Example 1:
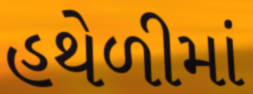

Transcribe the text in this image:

હથેળીમાં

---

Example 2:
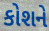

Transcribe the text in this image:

કોશને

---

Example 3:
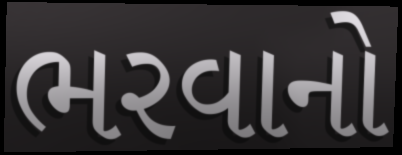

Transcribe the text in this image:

ભરવાનો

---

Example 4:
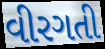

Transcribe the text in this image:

વીરગતી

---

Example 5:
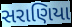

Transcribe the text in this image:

સરાણિયા